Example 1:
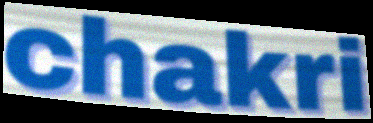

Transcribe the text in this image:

chakri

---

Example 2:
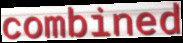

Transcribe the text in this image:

combined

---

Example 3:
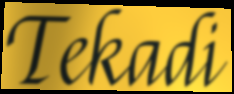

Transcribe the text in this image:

Tekadi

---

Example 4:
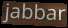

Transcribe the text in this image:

jabbar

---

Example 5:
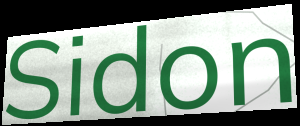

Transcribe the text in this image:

Sidon